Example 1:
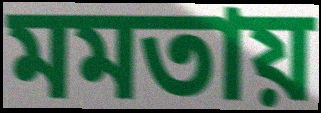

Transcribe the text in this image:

মমতায়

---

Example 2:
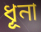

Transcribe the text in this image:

ধূনা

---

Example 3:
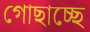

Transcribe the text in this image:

গোছাচ্ছে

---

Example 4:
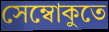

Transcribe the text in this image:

সেম্বোকুতে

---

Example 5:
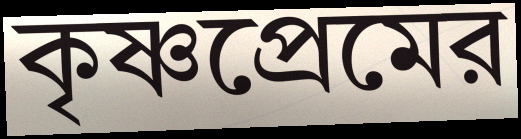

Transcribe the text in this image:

কৃষ্ণপ্রেমের